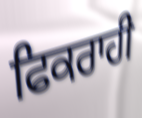
ਫਿਕਰਾਹੀ